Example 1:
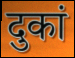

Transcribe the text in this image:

दुकां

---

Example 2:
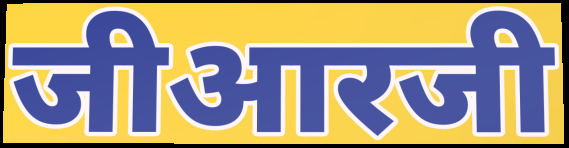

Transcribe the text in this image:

जीआरजी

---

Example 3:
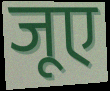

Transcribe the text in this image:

जूए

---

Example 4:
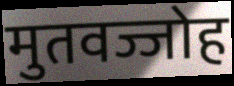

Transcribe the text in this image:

मुतवज्जोह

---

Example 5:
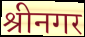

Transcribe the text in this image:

श्रीनगर